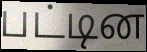
பட்டின